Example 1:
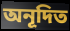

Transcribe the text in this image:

অনূদিত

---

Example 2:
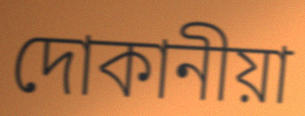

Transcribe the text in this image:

দোকানীয়া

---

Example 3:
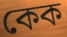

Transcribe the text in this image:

কেক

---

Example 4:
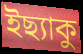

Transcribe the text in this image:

ইছ্যাকু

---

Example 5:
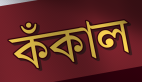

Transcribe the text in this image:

কঁকাল